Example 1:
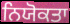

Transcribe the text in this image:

ਨਿਯੋਕਤਾ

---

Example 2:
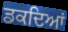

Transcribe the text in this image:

ਡਕਦਿਆਂ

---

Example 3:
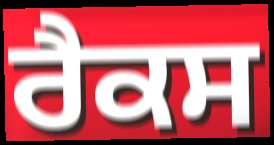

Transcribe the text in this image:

ਰੈਕਸ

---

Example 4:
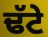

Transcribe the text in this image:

ਢੱਟੇ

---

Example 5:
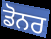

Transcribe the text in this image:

ਡੋਨਰ